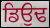
ਡਿਉਢ